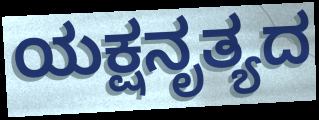
ಯಕ್ಷನೃತ್ಯದ